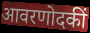
आवरणोदकीं